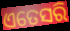
ଏତେସରି